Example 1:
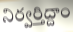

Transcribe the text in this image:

నిర్వర్తిద్దాం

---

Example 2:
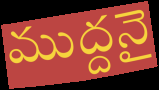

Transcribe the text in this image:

ముద్దనై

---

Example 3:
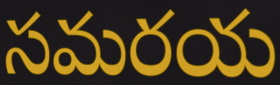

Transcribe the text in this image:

సమరయ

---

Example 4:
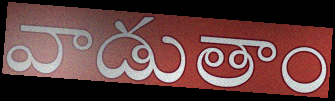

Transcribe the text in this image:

వాడుతాం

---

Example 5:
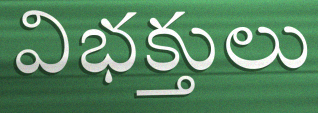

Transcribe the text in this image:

విభక్తులు